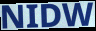
NIDW